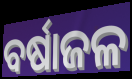
ବର୍ଷାଜଳ